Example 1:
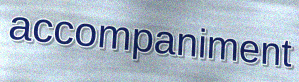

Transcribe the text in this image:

accompaniment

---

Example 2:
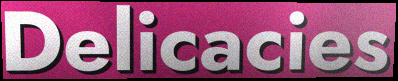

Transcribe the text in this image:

Delicacies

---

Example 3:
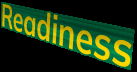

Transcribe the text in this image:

Readiness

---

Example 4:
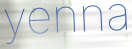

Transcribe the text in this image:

yenna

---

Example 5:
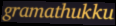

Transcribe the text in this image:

gramathukku